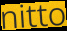
nitto